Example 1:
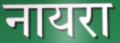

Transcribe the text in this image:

नायरा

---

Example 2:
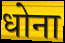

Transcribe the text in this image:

धोना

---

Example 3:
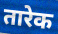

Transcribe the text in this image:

तारेक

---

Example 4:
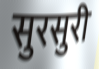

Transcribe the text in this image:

सुरसुरी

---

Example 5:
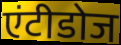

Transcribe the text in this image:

एंटीडोज